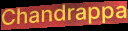
Chandrappa